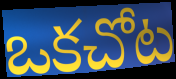
ఒకచోట